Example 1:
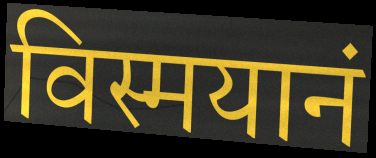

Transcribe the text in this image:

विस्मयानं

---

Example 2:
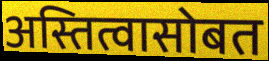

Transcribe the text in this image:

अस्तित्वासोबत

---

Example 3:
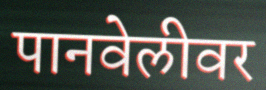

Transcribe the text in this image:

पानवेलीवर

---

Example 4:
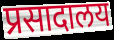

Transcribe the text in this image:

प्रसादालय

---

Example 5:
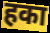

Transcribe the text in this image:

हका